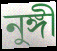
নুঙ্গী